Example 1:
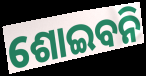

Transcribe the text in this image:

ଶୋଇବନି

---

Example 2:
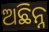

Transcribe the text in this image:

ଅଛିନ୍ନ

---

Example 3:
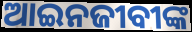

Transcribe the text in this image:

ଆଇନଜୀବୀଙ୍କ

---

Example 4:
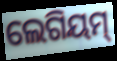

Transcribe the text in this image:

ଲେଗିୟମ୍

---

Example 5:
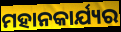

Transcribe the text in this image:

ମହାନକାର୍ଯ୍ୟର